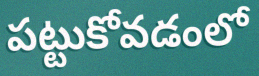
పట్టుకోవడంలో